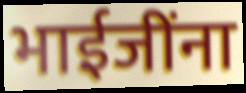
भाईजींना